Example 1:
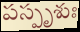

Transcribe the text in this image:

పస్పృశుః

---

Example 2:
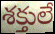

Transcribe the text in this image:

శక్తులే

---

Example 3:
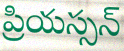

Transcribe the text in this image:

ప్రియస్సన్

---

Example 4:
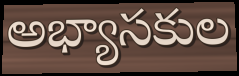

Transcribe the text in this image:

అభ్యాసకుల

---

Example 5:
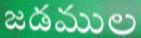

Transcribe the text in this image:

జడముల